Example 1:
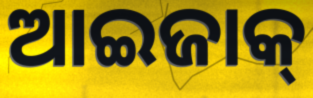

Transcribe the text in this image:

ଆଇଜାକ୍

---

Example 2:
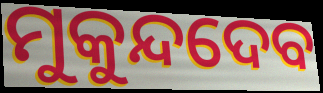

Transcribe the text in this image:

ମୁକୁନ୍ଦଦେବ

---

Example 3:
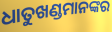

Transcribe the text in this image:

ଧାତୁଖଣ୍ଡମାନଙ୍କର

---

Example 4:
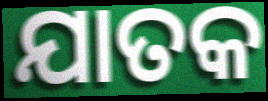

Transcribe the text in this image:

ଯାତକ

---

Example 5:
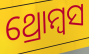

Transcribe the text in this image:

ଥ୍ରୋମ୍ବସ